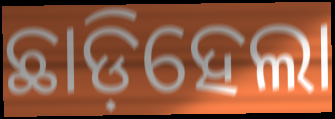
ଛାଡ଼ିହେଲା